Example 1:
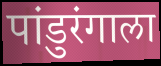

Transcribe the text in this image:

पांडुरंगाला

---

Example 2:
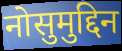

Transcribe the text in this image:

नोसुमुद्दिन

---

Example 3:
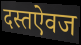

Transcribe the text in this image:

दस्तऐवज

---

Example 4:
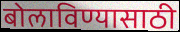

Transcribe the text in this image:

बोलाविण्यासाठी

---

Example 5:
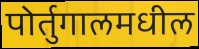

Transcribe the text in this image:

पोर्तुगालमधील